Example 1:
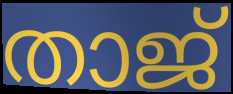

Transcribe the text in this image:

താജ്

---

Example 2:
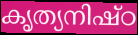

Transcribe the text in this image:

കൃത്യനിഷ്ഠ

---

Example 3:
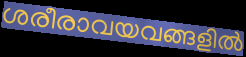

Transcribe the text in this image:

ശരീരാവയവങ്ങളിൽ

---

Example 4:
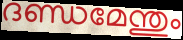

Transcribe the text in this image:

ദണ്ഡമേന്തും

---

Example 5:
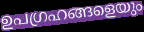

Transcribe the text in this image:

ഉപഗ്രഹങ്ങളെയും